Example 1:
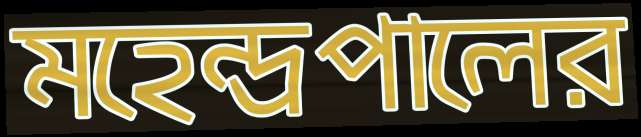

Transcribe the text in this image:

মহেন্দ্রপালের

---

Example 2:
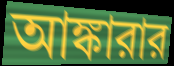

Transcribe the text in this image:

আঙ্কারার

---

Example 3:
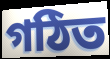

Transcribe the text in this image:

গঠিত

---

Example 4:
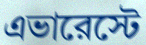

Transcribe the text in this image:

এভারেস্টে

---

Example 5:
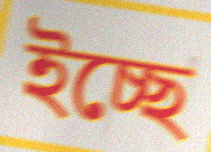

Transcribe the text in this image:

ইচ্ছে